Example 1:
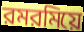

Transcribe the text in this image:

রমরমিয়ে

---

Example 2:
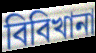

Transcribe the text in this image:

বিবিখানা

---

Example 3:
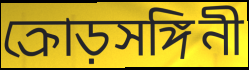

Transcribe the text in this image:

ক্রোড়সঙ্গিনী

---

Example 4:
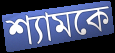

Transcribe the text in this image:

শ্যামকে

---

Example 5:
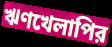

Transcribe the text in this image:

ঋণখেলাপির